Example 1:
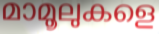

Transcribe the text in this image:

മാമൂലുകളെ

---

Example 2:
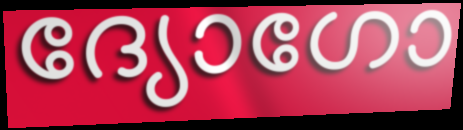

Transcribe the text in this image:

ദ്യോഗോ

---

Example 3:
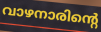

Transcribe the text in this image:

വാഴനാരിന്റെ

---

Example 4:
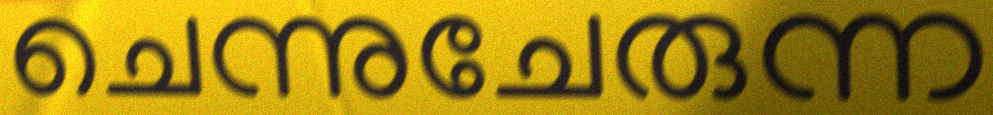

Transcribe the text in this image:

ചെന്നുചേരുന്ന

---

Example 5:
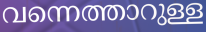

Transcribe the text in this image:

വന്നെത്താറുള്ള